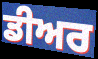
ਡੀਅਰ